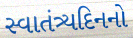
સ્વાતંત્ર્યદિનનો